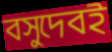
বসুদেবই